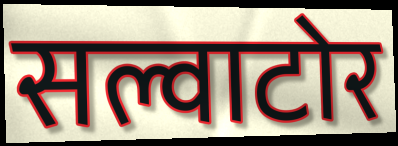
सल्वाटोर